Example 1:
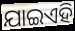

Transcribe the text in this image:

ଯାଇଏହି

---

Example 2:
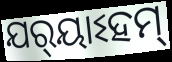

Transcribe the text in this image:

ଯର୍‌ୟାଽହମ୍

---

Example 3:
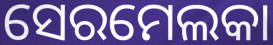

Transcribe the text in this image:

ସେରମେଲକା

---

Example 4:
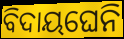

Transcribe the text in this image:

ବିଦାୟଘେନି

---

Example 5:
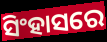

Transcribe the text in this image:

ସିଂହାସରେ